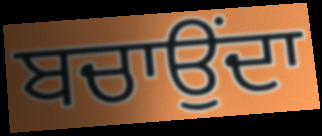
ਬਚਾਉਂਦਾ